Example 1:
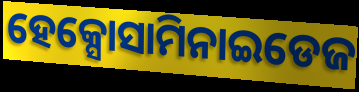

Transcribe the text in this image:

ହେକ୍ସୋସାମିନାଇଡେଜ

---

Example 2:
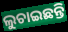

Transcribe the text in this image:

ଲୁଚାଇଛନ୍ତି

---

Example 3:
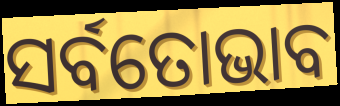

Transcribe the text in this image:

ସର୍ବତୋଭାବ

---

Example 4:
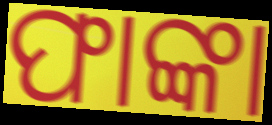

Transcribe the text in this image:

ଫାଙ୍କା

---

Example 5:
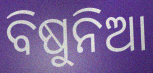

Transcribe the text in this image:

ବିଷୁନିଆ